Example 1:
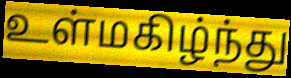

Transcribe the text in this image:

உள்மகிழ்ந்து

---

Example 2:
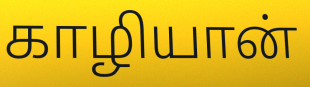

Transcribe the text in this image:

காழியான்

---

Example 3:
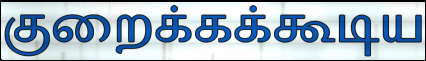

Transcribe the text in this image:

குறைக்கக்கூடிய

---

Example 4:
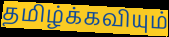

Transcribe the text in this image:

தமிழ்க்கவியும்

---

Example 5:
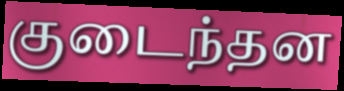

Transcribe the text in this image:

குடைந்தன